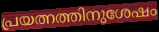
പ്രയത്നത്തിനുശേഷം